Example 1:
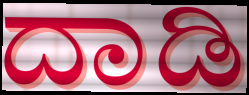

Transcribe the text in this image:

ದಾಡಿ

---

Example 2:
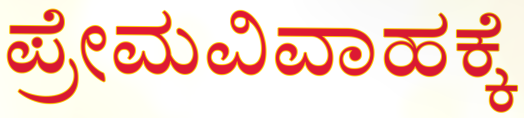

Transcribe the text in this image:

ಪ್ರೇಮವಿವಾಹಕ್ಕೆ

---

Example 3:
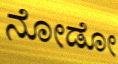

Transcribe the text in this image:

ನೋಡೋ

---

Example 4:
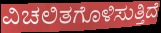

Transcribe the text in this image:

ವಿಚಲಿತಗೊಳಿಸುತ್ತಿದೆ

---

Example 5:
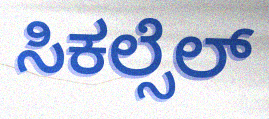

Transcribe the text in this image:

ಸಿಕಲ್ಸೆಲ್